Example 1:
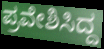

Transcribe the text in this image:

ಪ್ರವೇಶಿಸಿದ್ದ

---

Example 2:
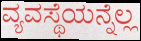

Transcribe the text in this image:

ವ್ಯವಸ್ಥೆಯನ್ನೆಲ್ಲ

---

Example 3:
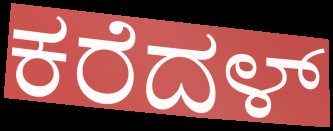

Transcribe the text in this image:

ಕರೆದಳ್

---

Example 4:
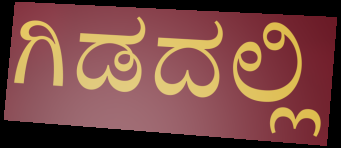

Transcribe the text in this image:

ಗಿಡದಲ್ಲಿ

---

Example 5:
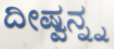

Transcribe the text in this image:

ದೀಷ್ವನ್ನ್ನ